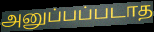
அனுப்பப்படாத